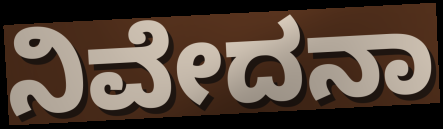
ನಿವೇದನಾ